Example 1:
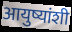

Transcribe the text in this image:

आयुष्यांशी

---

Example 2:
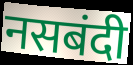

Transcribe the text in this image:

नसबंदी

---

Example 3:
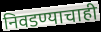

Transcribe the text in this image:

निवडण्याचाही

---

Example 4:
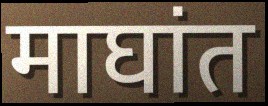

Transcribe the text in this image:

माघांत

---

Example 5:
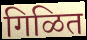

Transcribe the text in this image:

गिळित